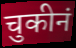
चुकीनं